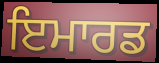
ਇਮਾਰਡ